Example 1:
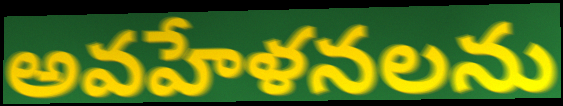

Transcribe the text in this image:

అవహేళనలను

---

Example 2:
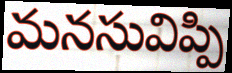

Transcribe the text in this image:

మనసువిప్పి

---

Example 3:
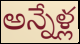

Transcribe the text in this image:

అన్నేళ్ల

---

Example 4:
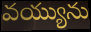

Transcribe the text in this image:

వయ్యును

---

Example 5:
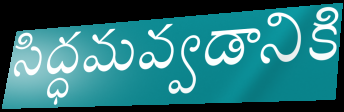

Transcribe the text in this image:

సిద్ధమవ్వడానికి